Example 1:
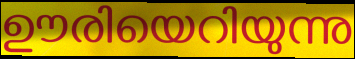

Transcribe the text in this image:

ഊരിയെറിയുന്നു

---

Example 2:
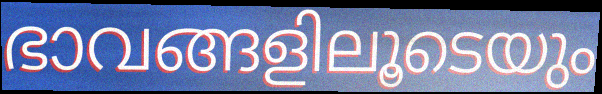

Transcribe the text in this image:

ഭാവങ്ങളിലൂടെയും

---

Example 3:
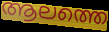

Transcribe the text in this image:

ആലത്തെ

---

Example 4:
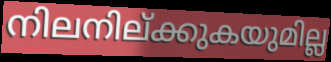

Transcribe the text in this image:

നിലനില്ക്കുകയുമില്ല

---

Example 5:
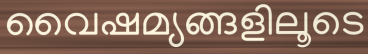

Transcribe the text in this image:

വൈഷമ്യങ്ങളിലൂടെ